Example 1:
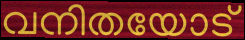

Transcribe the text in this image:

വനിതയോട്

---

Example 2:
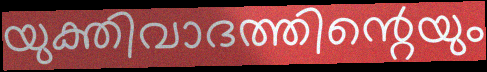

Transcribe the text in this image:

യുക്തിവാദത്തിന്റെയും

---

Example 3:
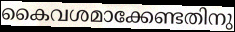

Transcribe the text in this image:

കൈവശമാക്കേണ്ടതിനു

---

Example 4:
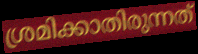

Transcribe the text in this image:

ശ്രമിക്കാതിരുന്നത്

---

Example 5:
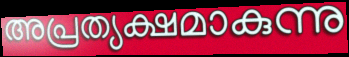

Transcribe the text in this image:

അപ്രത്യക്ഷമാകുന്നു